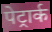
पेट्रार्क